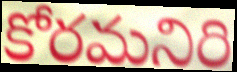
కోరమనిరి